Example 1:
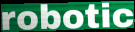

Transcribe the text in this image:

robotic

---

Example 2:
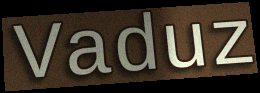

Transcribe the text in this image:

Vaduz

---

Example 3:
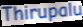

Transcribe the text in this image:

Thirupalu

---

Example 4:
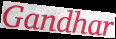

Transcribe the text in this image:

Gandhar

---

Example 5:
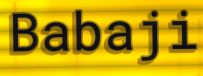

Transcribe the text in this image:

Babaji